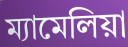
ম্যামেলিয়া